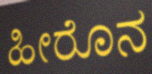
ಹೀರೊನ